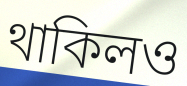
থাকিলও